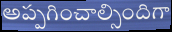
అప్పగించాల్సిందిగా